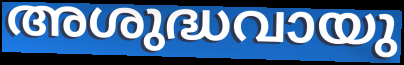
അശുദ്ധവായു